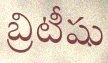
బ్రిటీషు